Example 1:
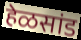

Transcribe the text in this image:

हेळसांड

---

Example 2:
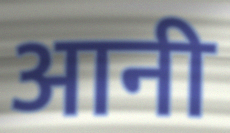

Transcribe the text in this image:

आनी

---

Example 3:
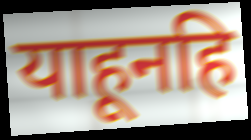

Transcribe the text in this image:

याहूनहि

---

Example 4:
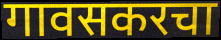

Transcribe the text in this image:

गावसकरचा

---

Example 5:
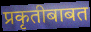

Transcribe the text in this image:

प्रकृतीबाबत